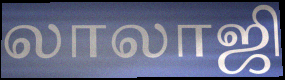
லாலாஜி